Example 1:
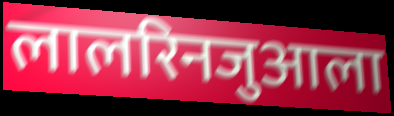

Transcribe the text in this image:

लालरिनजुआला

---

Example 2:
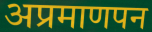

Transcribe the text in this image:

अप्रमाणपन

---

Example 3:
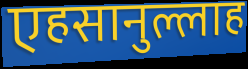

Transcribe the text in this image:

एहसानुल्लाह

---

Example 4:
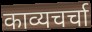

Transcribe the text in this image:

काव्यचर्चा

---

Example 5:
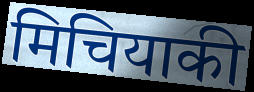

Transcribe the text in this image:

मिचियाकी